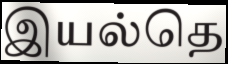
இயல்தெ